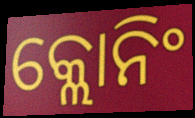
କ୍ଲୋନିଂ